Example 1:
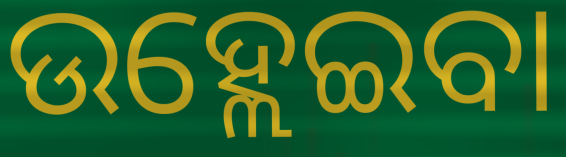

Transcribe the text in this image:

ଉହ୍ଲେଇବା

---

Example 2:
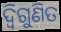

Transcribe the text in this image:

ଦ୍ୱିଗୁଣିତ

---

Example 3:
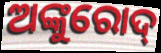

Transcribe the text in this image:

ଅଙ୍କୁରୋଦ୍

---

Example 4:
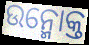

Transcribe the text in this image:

ଉନ୍ମୋକ୍ତ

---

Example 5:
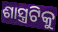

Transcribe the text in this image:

ଶାସ୍ତ୍ରଟିକୁ